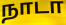
நாடா